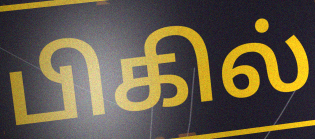
பிகில்